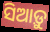
ସିଆଡ଼ୁ